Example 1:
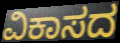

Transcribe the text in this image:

ವಿಕಾಸದ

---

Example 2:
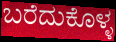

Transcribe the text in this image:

ಬರೆದುಕೊಳ್ಳ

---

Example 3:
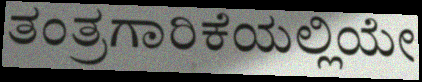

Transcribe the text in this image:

ತಂತ್ರಗಾರಿಕೆಯಲ್ಲಿಯೇ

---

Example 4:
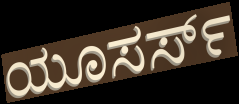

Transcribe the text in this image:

ಯೂಸರ್ಸ್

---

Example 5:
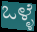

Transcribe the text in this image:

ಒಳ್ಳೆ